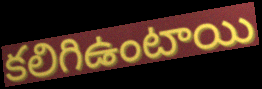
కలిగిఉంటాయి